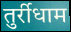
तुर्रीधाम